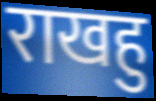
राखहु